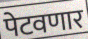
पेटवणार